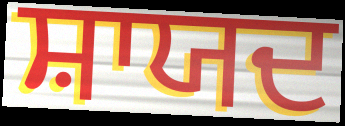
ਸ਼ਾਯਦ